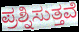
ಪ್ರಶ್ನಿಸುತ್ತವೆ